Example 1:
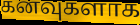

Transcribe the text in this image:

கனவுகளாக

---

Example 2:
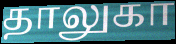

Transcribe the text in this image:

தாலுகா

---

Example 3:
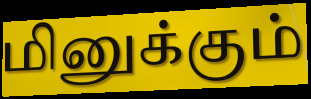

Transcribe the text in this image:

மினுக்கும்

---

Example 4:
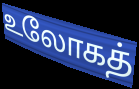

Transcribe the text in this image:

உலோகத்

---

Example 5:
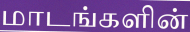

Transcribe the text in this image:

மாடங்களின்